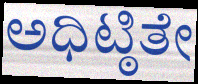
ಅಧಿಟ್ಠಿತೇ